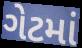
ગેટમાં